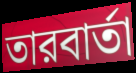
তারবার্তা